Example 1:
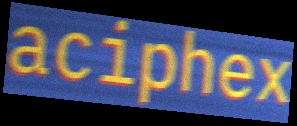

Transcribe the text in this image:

aciphex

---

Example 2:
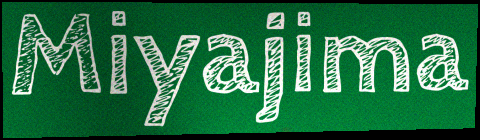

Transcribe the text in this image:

Miyajima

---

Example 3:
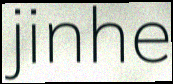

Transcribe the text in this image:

jinhe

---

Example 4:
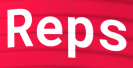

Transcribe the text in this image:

Reps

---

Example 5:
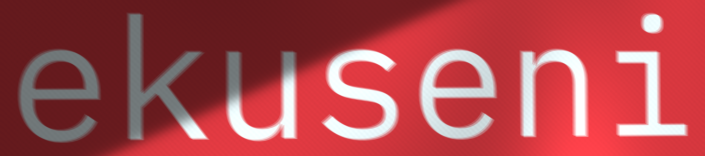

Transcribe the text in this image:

ekuseni